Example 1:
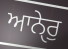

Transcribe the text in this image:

ਆਨੇੑਰੁ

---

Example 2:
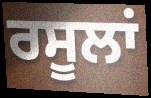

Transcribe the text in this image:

ਰਸੂਲਾਂ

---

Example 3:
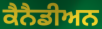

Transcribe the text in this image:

ਕੈਨੈਡੀਅਨ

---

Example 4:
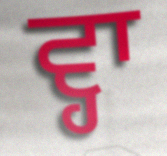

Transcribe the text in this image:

ਵ੍ਹਾ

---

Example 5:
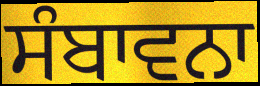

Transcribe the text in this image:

ਸੰਬਾਵਨਾ